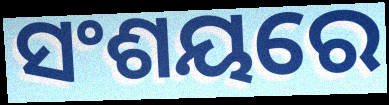
ସଂଶୟରେ